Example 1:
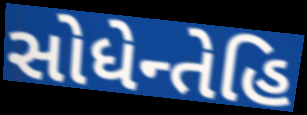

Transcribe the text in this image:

સોધેન્તેહિ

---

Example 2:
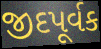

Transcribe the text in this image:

જીદપૂર્વક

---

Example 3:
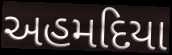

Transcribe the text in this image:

અહમદિયા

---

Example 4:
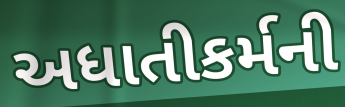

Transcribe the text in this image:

અધાતીકર્મની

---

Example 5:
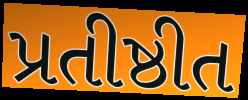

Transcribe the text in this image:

પ્રતીષ્ઠીત